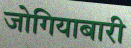
जोगियाबारी